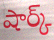
షార్క్